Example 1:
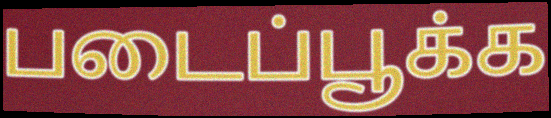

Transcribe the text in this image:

படைப்பூக்க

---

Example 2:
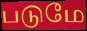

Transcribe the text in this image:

படுமே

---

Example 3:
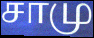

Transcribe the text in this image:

சாமு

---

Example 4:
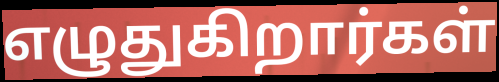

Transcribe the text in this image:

எழுதுகிறார்கள்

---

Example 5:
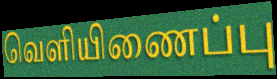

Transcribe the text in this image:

வெளியிணைப்பு